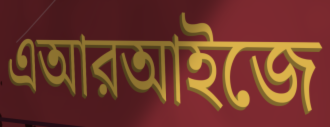
এআরআইজে